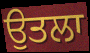
ਉਤਲਾ